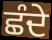
ਛੰਦੇ